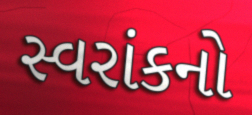
સ્વરાંકનો